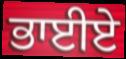
ਭਾਈਏ